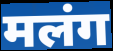
मलंग